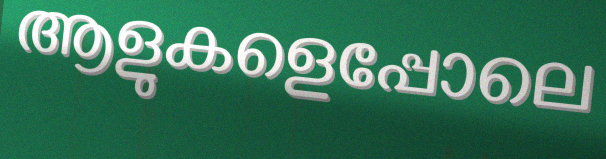
ആളുകളെപ്പോലെ